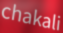
chakali